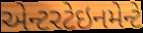
એન્ટરટેઇનમેન્ટે